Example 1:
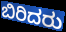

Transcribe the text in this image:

ಬಿರಿದರು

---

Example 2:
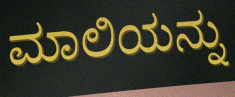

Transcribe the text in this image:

ಮಾಲಿಯನ್ನು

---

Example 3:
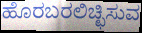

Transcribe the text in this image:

ಹೊರಬರಲಿಚ್ಛಿಸುವ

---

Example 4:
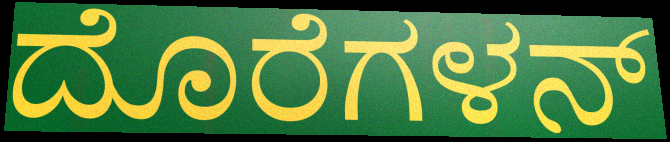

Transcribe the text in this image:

ದೊರೆಗಳನ್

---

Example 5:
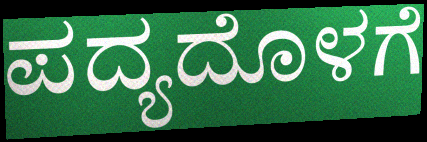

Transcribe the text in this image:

ಪದ್ಯದೊಳಗೆ